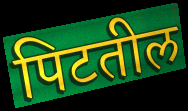
पिटतील